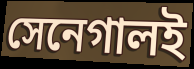
সেনেগালই